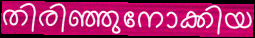
തിരിഞ്ഞുനോക്കിയ